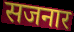
सजनार